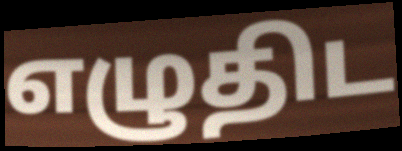
எழுதிட